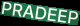
PRADEEP